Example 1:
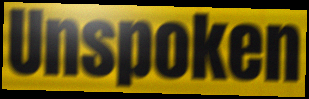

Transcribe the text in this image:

Unspoken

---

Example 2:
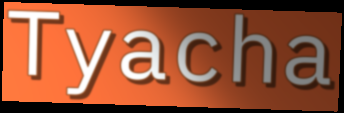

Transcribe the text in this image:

Tyacha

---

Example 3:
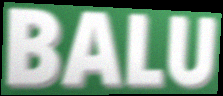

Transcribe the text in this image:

BALU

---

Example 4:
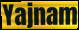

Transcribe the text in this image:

Yajnam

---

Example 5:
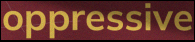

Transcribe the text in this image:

oppressive